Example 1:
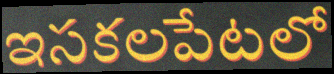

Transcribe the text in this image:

ఇసకలపేటలో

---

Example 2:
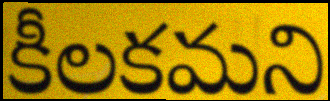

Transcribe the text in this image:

కీలకమని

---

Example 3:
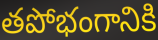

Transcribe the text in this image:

తపోభంగానికి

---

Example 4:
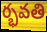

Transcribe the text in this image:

ర్భవతి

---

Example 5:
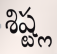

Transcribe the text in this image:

శిష్ట్ల